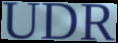
UDR